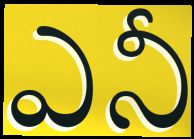
ఎనీ